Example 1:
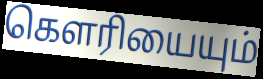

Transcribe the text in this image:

கௌரியையும்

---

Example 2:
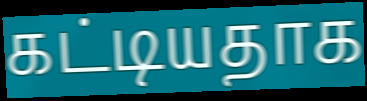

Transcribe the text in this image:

கட்டியதாக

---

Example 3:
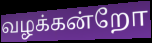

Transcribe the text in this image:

வழக்கன்றோ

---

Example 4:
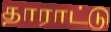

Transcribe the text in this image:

தாராட்டு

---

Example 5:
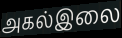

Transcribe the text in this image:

அகல்இலை